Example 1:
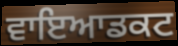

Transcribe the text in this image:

ਵਾਇਆਡਕਟ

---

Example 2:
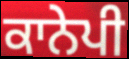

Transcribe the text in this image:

ਕਾਨੇਪੀ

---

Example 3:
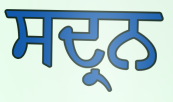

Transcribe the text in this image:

ਸਦ੍ਰਨ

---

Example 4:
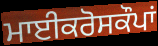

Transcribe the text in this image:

ਮਾਈਕਰੋਸਕੌਪਾਂ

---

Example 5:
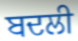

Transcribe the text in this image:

ਬਦਲੀ